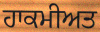
ਹਾਕਮੀਅਤ